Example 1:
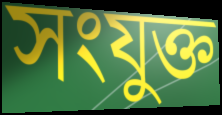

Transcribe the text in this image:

সংযুক্ত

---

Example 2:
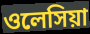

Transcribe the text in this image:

ওলেসিয়া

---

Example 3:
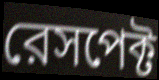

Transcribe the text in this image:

রেসপেক্ট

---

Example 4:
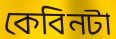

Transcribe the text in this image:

কেবিনটা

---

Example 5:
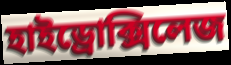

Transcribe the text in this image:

হাইড্রোক্সিলেজ